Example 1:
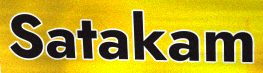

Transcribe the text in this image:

Satakam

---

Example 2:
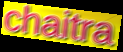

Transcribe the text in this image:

chaitra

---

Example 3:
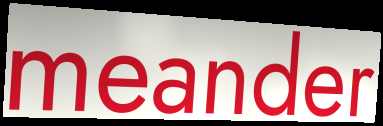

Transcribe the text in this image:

meander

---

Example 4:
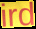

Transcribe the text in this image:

ird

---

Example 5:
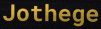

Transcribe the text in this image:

Jothege